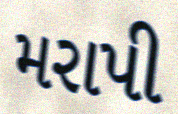
મરાપી